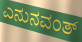
ಎನುನವಂತ್